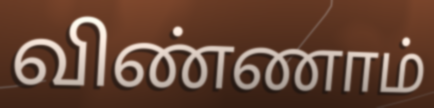
விண்ணாம்